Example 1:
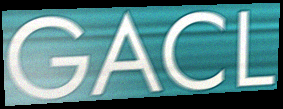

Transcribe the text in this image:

GACL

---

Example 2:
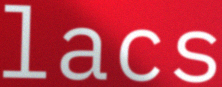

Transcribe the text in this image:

lacs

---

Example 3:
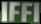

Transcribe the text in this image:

IFFI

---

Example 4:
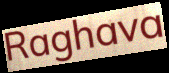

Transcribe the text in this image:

Raghava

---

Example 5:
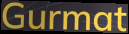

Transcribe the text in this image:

Gurmat